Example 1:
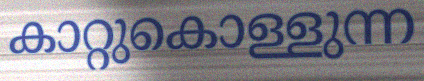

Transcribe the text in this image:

കാറ്റുകൊള്ളുന്ന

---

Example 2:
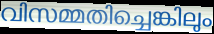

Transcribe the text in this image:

വിസമ്മതിച്ചെങ്കിലും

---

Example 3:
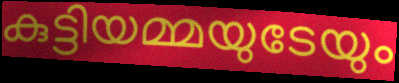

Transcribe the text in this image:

കുട്ടിയമ്മയുടേയും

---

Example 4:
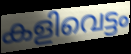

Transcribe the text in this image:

കളിവെട്ടം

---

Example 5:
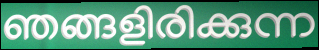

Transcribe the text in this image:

ഞങ്ങളിരിക്കുന്ന